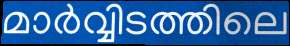
മാർവ്വിടത്തിലെ